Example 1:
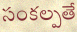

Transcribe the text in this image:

సంకల్పతే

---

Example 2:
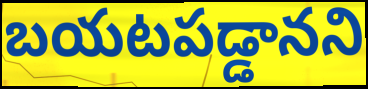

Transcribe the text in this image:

బయటపడ్డానని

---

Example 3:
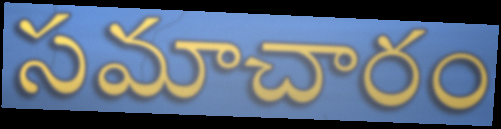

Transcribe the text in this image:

సమాచారం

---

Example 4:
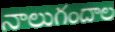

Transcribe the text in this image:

నాలుగందాల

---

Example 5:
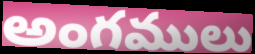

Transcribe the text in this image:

అంగములు